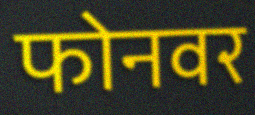
फोनवर